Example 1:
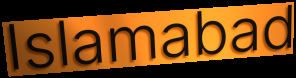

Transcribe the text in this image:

Islamabad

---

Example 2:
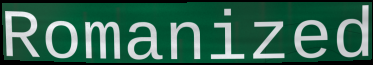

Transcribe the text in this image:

Romanized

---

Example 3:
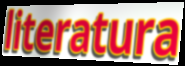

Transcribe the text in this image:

literatura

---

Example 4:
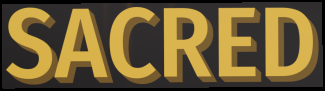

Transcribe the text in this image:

SACRED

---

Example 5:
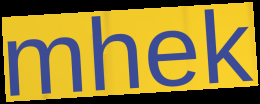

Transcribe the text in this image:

mhek